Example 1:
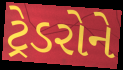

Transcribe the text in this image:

ટ્રેડરોને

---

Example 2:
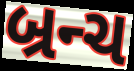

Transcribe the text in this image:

બ્રન્ચ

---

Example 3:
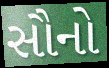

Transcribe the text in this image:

સૌનો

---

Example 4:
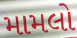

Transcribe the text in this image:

મામલો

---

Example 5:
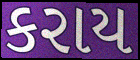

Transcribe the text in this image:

કરાય